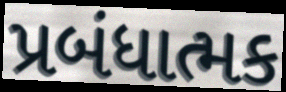
પ્રબંધાત્મક